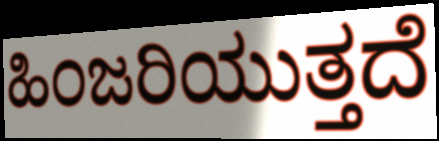
ಹಿಂಜರಿಯುತ್ತದೆ